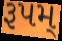
રૂપમ્